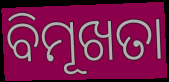
ବିମୂଖତା